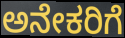
ಅನೇಕರಿಗೆ